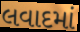
લવાદમાં